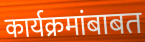
कार्यक्रमांबाबत